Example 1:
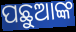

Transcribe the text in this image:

ପଛୁଆଙ୍କ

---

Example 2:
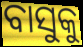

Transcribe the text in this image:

ବାସୁକୁ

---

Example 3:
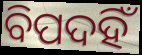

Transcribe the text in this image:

ବିପଦହିଁ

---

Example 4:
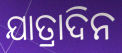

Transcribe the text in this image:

ଯାତ୍ରାଦିନ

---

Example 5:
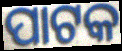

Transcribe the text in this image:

ପାଟକ